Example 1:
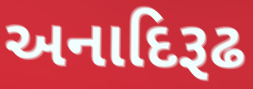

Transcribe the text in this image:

અનાદિરૂઢ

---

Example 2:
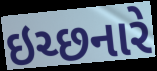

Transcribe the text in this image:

ઇચ્છનારે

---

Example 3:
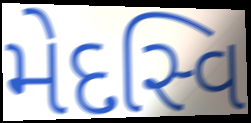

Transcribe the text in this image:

મેદસ્વિ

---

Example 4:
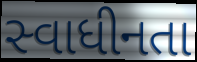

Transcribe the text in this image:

સ્વાધીનતા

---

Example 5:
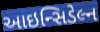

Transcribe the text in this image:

આઇન્સિડેલ્ન